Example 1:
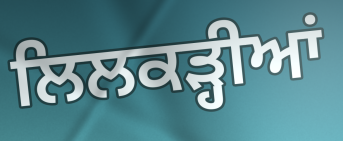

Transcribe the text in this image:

ਲਿਲਕੜ੍ਹੀਆਂ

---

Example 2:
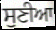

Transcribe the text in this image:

ਸੁਣੀਆ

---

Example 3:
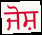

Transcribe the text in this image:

ਜੋਸ਼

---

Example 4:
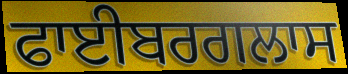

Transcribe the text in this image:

ਫਾਈਬਰਗਲਾਸ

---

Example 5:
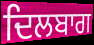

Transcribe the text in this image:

ਦਿਲਬਾਗ